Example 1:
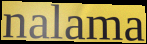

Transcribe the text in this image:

nalama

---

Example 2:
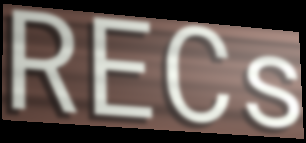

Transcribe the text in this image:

RECs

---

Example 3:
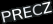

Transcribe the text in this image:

PRECZ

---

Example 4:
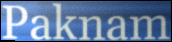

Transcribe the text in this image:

Paknam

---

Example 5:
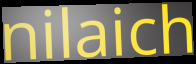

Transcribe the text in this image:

nilaich